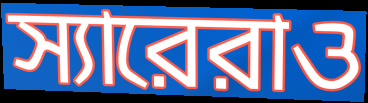
স্যারেরাও